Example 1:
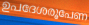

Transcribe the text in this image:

ഉപദേശരൂപേണ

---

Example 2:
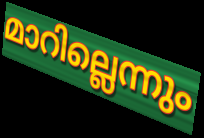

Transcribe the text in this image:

മാറില്ലെന്നും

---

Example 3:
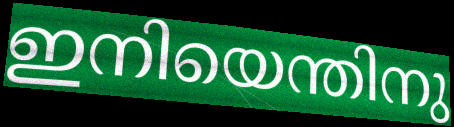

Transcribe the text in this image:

ഇനിയെന്തിനു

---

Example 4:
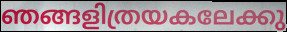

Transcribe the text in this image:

ഞങ്ങളിത്രയകലേക്കു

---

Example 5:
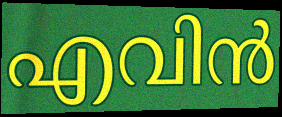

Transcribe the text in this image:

എവിൻ